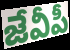
జేవీపీ